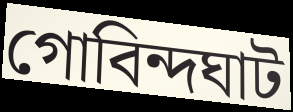
গোবিন্দঘাট